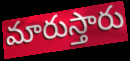
మారుస్తారు